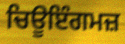
ਚਿਊਇੰਗਮਜ਼